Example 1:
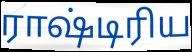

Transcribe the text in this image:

ராஷ்டிரிய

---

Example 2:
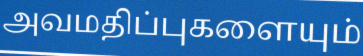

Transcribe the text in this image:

அவமதிப்புகளையும்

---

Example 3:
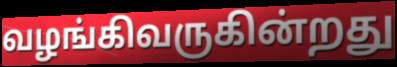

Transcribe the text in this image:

வழங்கிவருகின்றது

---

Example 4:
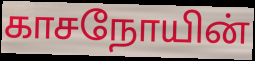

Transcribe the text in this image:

காசநோயின்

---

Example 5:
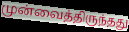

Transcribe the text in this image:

முன்வைத்திருந்தது